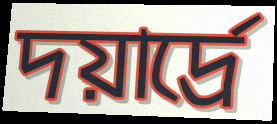
দয়ার্দ্রে